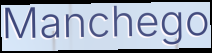
Manchego